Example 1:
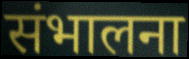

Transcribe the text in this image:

संभालना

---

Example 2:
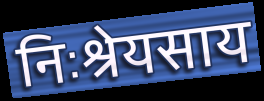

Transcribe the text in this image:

निःश्रेयसाय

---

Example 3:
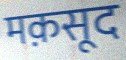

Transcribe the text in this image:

मक़सूद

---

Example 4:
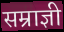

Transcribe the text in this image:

सम्राज्ञी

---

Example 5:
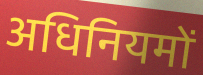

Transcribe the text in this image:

अधिनियमों